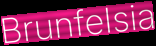
Brunfelsia